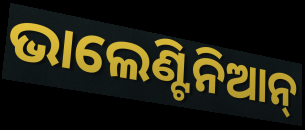
ଭାଲେଣ୍ଟିନିଆନ୍